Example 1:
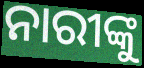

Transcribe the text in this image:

ନାରୀଙ୍କୁ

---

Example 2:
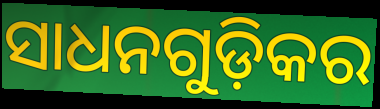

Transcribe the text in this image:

ସାଧନଗୁଡ଼ିକର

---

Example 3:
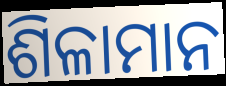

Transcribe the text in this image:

ଶିଳାମାନ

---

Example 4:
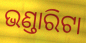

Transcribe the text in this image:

ଭଣ୍ଡାରିଟା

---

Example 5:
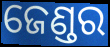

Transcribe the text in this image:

ଜେଣ୍ଡର